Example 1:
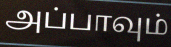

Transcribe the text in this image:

அப்பாவும்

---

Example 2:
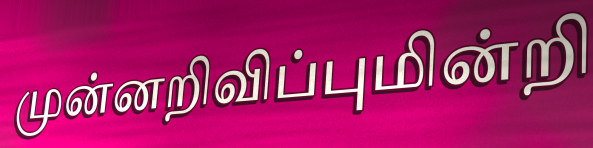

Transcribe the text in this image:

முன்னறிவிப்புமின்றி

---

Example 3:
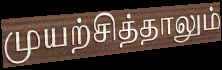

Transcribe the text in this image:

முயற்சித்தாலும்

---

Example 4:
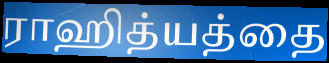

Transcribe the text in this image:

ராஹித்யத்தை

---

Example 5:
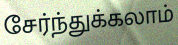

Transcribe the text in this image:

சேர்ந்துக்கலாம்